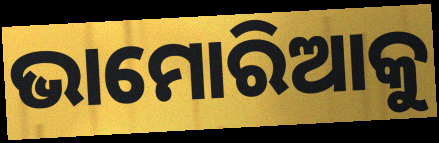
ଭାମୋରିଆକୁ